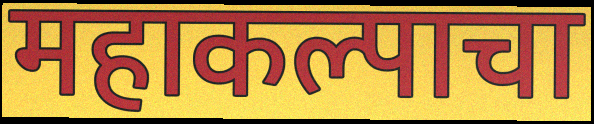
महाकल्पाचा